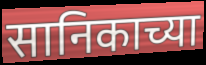
सानिकाच्या